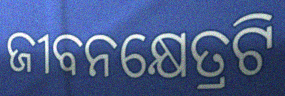
ଜୀବନକ୍ଷେତ୍ରଟି